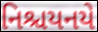
નિશ્ચયનયે